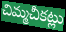
చిమ్మచీకట్లు